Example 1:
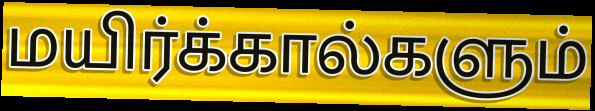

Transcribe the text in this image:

மயிர்க்கால்களும்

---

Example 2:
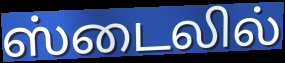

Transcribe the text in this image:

ஸ்டைலில்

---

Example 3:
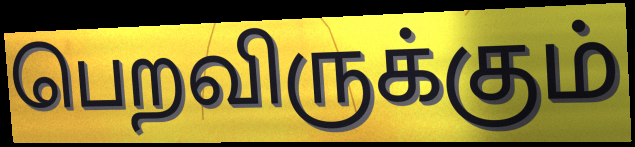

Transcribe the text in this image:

பெறவிருக்கும்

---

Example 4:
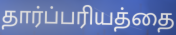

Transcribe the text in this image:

தார்ப்பரியத்தை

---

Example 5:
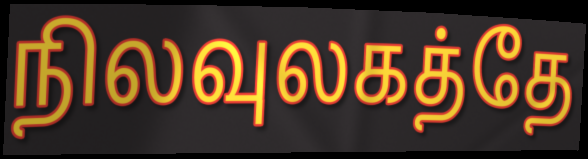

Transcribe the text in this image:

நிலவுலகத்தே